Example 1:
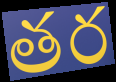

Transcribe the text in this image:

తర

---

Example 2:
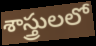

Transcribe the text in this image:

శాస్త్రులలో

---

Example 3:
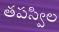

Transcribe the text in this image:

తపస్విల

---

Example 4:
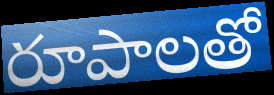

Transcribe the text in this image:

రూపాలతో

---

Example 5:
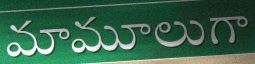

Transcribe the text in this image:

మామూలుగా